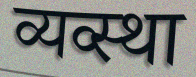
व्यव्स्था